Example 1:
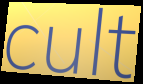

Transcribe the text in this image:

cult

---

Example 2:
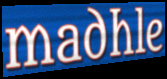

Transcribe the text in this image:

madhle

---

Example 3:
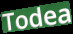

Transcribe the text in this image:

Todea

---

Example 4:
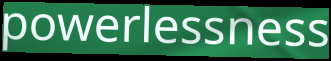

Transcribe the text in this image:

powerlessness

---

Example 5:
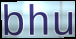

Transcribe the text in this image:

bhu